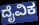
ದೈವಿಕ